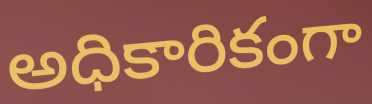
అధికారికంగా